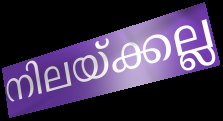
നിലയ്ക്കല്ല